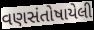
વણસંતોષાયેલી